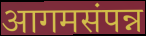
आगमसंपन्न